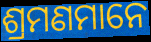
ଶ୍ରମଣମାନେ